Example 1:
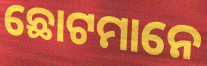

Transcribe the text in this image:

ଛୋଟମାନେ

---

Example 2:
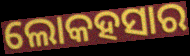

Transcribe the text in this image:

ଲୋକହସାର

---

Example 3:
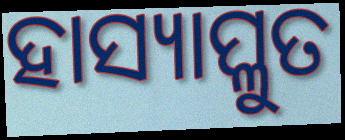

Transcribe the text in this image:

ହାସ୍ୟାପ୍ଳୁତ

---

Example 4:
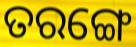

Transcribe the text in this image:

ତରଙ୍ଗେ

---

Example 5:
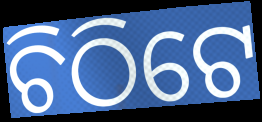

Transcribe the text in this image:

ଚିଠିଟେ